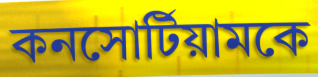
কনসোর্টিয়ামকে